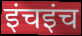
इंचइंच